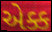
એક્ક